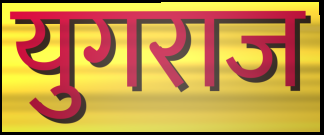
युगराज